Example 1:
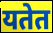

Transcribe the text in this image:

यतेत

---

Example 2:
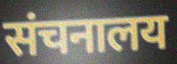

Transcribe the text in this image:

संचनालय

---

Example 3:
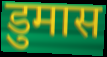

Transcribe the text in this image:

डुमास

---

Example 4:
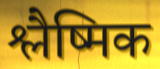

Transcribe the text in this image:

श्लैष्मिक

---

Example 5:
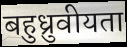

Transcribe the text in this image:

बहुध्रुवीयता